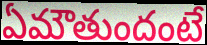
ఏమౌతుందంటే